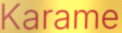
Karame